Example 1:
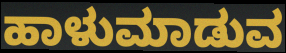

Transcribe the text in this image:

ಹಾಳುಮಾಡುವ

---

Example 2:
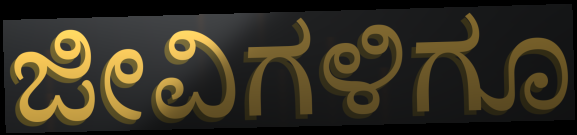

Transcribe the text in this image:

ಜೀವಿಗಳಿಗೂ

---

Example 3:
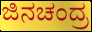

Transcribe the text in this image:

ಜಿನಚಂದ್ರ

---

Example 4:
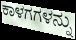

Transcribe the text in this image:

ಕಾಳಗಗಳನ್ನು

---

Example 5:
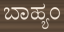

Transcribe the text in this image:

ಬಾಹ್ಯಂ